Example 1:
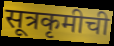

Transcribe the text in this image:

सूत्रकृमीची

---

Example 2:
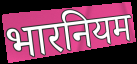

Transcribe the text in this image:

भारनियम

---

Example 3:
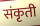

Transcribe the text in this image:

संकृती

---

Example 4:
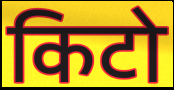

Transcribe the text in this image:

किटो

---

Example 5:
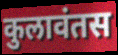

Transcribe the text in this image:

कुलावंतस